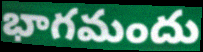
భాగమందు